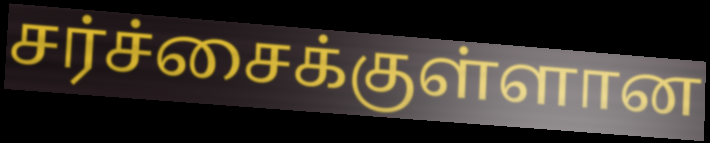
சர்ச்சைக்குள்ளான